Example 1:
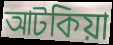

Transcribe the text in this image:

আটকিয়া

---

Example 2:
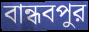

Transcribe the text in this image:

বান্ধবপুর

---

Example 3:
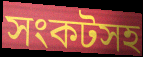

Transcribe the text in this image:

সংকটসহ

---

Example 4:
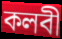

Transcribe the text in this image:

কলবী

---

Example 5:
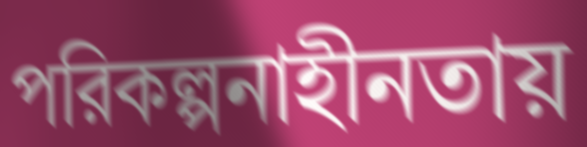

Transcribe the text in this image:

পরিকল্পনাহীনতায়